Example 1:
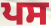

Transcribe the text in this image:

ਪਸ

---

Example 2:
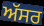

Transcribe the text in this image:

ਅੱਸਰ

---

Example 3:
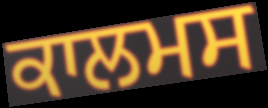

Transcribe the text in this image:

ਕਾਲਮਸ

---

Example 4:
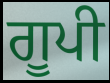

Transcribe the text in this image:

ਗੂਪੀ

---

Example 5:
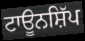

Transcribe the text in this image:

ਟਾਊਨਸ਼ਿੱਪ